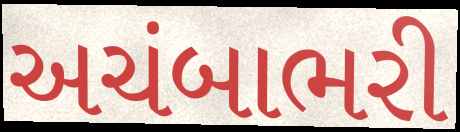
અચંબાભરી